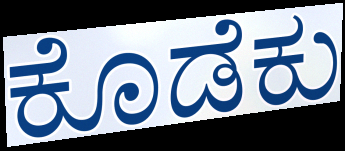
ಕೊಡೆಕು